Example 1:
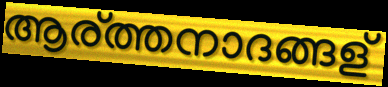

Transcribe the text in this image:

ആര്ത്തനാദങ്ങള്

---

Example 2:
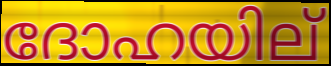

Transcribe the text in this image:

ദോഹയില്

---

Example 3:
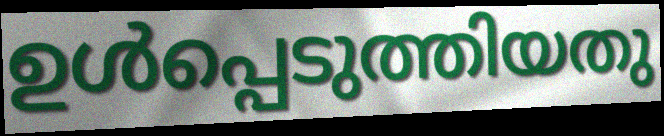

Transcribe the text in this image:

ഉൾപ്പെടുത്തിയതു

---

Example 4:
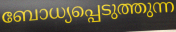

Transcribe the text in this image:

ബോധ്യപ്പെടുത്തുന്ന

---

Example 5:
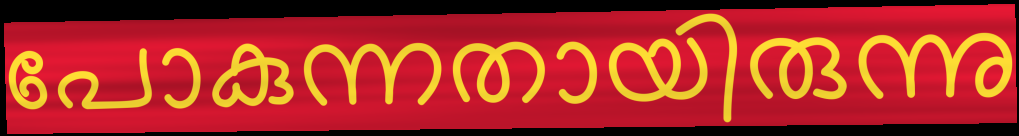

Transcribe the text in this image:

പോകുന്നതായിരുന്നു